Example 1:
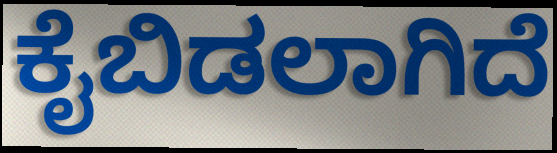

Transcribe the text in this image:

ಕೈಬಿಡಲಾಗಿದೆ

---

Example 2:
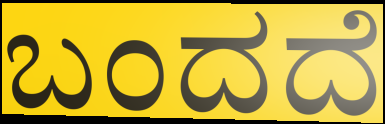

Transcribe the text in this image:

ಬಂದದೆ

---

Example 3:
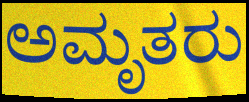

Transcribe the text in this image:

ಅಮೃತರು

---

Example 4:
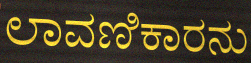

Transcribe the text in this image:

ಲಾವಣಿಕಾರನು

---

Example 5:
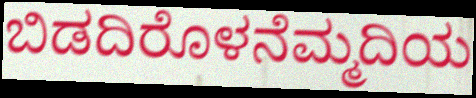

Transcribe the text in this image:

ಬಿಡದಿರೊಳನೆಮ್ಮದಿಯ